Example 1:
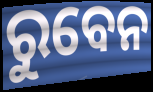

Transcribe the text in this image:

ରୁବେନ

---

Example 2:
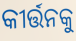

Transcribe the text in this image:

କୀର୍ତ୍ତନକୁ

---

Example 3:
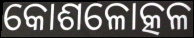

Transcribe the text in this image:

କୋଶଳୋତ୍କଳ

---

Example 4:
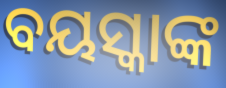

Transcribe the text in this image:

ବୟସ୍କାଙ୍କ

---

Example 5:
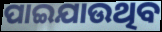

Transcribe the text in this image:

ପାଇଯାଉଥିବ